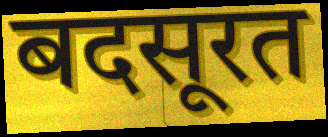
बदसूरत